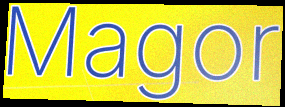
Magor